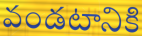
వండటానికి